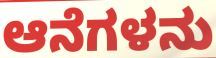
ಆನೆಗಳನು